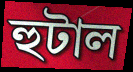
হুটাল